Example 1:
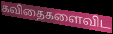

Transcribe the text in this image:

கவிதைகளைவிட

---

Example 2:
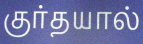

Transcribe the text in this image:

குர்தயால்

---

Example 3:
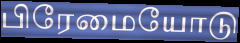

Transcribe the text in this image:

பிரேமையோடு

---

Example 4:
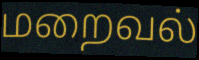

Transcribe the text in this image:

மறைவல்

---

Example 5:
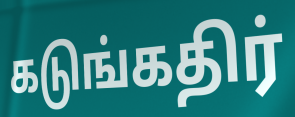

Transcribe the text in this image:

கடுங்கதிர்